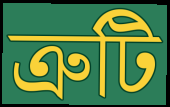
ত্রুটি